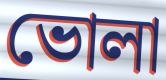
ভোলা